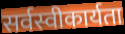
सर्वस्वीकार्यता